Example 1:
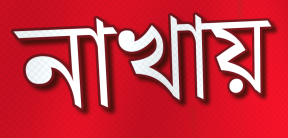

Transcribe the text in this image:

নাখায়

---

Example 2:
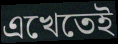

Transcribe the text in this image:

এখেতেই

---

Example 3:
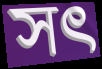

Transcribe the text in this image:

সৎ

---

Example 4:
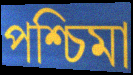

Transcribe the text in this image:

পশ্চিমা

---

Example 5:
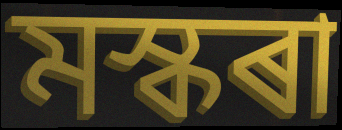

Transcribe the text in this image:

মস্কৰা